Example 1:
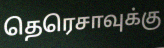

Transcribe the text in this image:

தெரெசாவுக்கு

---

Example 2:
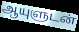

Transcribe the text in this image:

ஆயுளுடன்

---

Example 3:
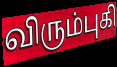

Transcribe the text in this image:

விரும்புகி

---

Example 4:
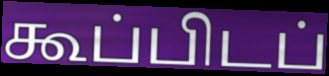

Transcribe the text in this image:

கூப்பிடப்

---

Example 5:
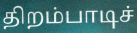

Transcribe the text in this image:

திறம்பாடிச்